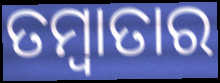
ତମ୍ବାତାର